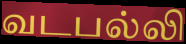
வடபல்லி